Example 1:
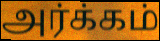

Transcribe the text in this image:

அர்க்கம்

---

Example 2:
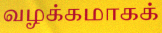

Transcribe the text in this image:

வழக்கமாகக்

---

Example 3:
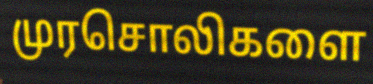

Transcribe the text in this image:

முரசொலிகளை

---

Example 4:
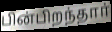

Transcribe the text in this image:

பின்பிறந்தார்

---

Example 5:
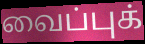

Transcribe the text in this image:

வைப்புக்